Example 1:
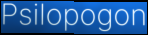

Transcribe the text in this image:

Psilopogon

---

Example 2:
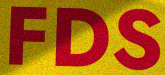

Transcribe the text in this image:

FDS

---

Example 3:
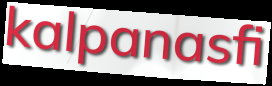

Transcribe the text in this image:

kalpanasfi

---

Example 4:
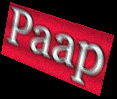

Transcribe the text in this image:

Paap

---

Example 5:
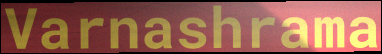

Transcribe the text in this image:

Varnashrama